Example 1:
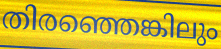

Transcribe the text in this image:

തിരഞ്ഞെങ്കിലും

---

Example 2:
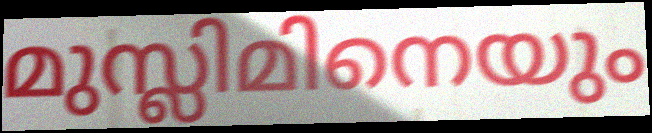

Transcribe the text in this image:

മുസ്ലിമിനെയും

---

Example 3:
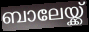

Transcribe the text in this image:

ബാലേയ്ക്ക്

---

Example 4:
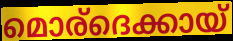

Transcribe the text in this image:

മൊര്ദെക്കായ്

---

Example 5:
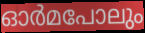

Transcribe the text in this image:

ഓർമപോലും